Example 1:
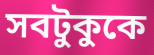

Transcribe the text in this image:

সবটুকুকে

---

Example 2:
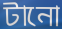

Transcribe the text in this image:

টানো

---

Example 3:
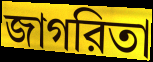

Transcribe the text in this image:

জাগরিতা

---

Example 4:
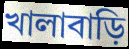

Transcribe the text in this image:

খালাবাড়ি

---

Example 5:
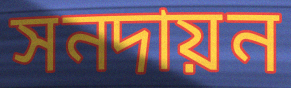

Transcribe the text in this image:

সনদায়ন